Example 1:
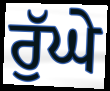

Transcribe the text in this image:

ਰੁੱਘੇ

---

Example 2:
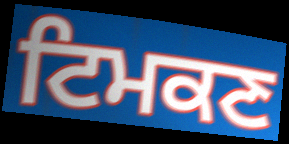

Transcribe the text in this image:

ਟਿਮਕਣ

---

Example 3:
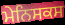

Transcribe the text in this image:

ਮੇਨਿਸਕਸ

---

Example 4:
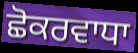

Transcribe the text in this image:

ਛੋਕਰਵਾਧਾ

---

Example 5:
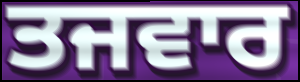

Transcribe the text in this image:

ਤਜਵਾਰ